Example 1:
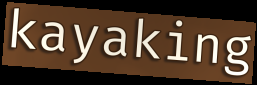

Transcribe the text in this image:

kayaking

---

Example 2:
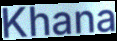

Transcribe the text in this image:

Khana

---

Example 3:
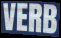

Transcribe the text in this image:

VERB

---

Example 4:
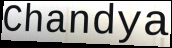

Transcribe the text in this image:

Chandya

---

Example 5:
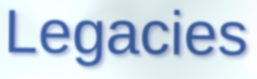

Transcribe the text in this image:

Legacies